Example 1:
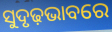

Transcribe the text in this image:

ସୁଦୃଢ଼ଭାବରେ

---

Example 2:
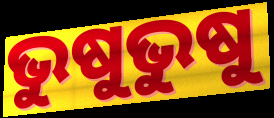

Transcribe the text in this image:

ଭୁଷୁଭୁଷୁ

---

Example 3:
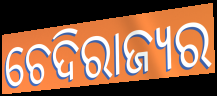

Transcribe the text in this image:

ଚେଦିରାଜ୍ୟର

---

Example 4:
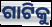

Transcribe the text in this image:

ଗାଟିକୁ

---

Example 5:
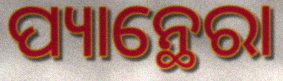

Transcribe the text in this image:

ପ୍ୟାନ୍ଥେରା